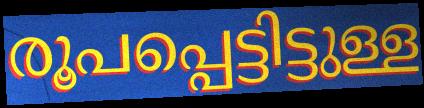
രൂപപ്പെട്ടിട്ടുള്ള